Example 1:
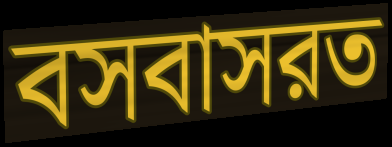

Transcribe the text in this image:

বসবাসরত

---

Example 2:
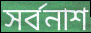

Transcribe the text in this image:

সর্বনাশ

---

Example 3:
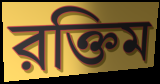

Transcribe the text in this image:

রক্তিম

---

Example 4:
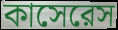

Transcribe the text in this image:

কাসেরেস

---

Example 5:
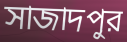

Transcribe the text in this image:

সাজাদপুর